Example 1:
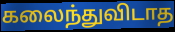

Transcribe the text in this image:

கலைந்துவிடாத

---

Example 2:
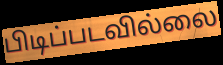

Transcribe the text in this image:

பிடிப்படவில்லை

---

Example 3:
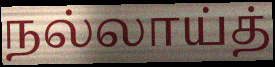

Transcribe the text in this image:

நல்லாய்த்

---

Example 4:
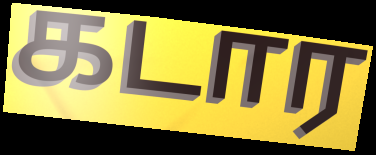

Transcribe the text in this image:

கடார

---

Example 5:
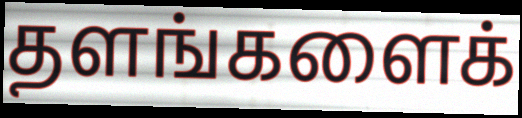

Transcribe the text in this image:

தளங்களைக்